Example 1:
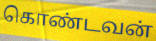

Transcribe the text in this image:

கொண்டவன்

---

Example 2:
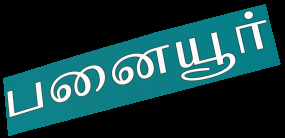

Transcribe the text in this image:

பனையூர்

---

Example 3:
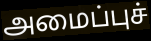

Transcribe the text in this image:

அமைப்புச்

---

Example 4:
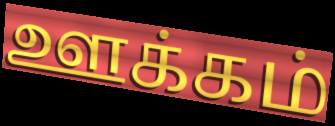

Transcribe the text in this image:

ஊக்கம்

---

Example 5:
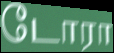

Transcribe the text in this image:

டோரா